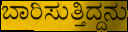
ಬಾರಿಸುತ್ತಿದ್ದನು